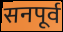
सनपूर्व